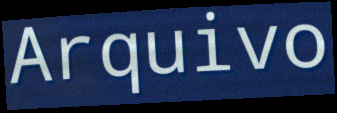
Arquivo